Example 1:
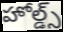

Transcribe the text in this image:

హోల్డ్స్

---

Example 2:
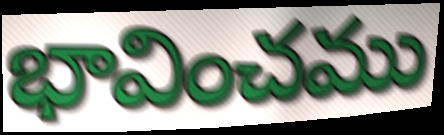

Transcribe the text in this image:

భావించము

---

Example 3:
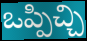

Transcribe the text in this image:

ఒప్పిచ్చి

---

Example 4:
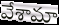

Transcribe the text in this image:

వేశామా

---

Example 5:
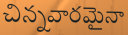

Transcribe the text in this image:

చిన్నవారమైనా